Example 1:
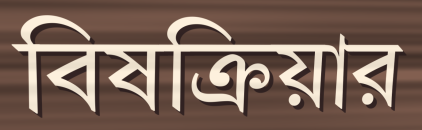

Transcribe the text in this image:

বিষক্রিয়ার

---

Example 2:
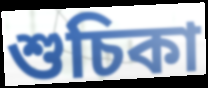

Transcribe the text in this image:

শুচিকা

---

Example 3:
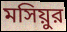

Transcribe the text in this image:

মসিয়ুর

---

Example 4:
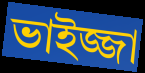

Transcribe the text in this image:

ভাইজ্জা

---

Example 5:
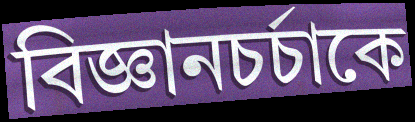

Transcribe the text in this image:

বিজ্ঞানচর্চাকে